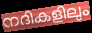
നദികളിലും